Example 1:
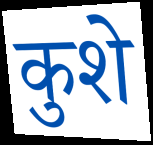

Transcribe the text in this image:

कुशे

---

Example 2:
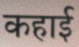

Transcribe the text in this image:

कहाई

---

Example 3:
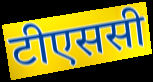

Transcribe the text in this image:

टीएससी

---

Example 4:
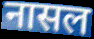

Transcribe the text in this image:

नासल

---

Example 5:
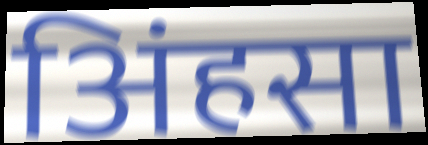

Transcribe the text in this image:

अिंहसा